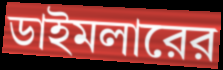
ডাইমলারের